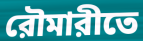
রৌমারীতে